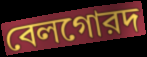
বেলগোরদ